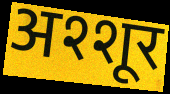
अश्शूर